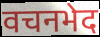
वचनभेद